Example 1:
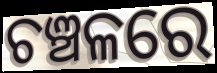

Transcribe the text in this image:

ଚଞ୍ଚଳରେ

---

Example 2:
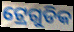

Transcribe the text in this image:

ଟ୍ରେଗୁଡିକ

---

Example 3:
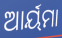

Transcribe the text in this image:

ଆର୍ୟମା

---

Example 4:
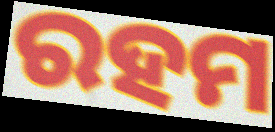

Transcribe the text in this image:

ରହମ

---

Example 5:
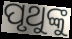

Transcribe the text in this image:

ପୃଥୁଙ୍କୁ